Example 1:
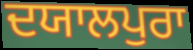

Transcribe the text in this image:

ਦਯਾਲਪੁਰਾ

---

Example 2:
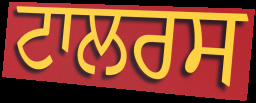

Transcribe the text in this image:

ਟਾਲਰਸ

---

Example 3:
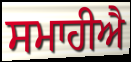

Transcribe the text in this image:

ਸਮਾਹੀਐ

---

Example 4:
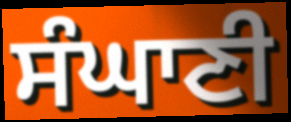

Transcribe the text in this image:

ਸੰਘਾਣੀ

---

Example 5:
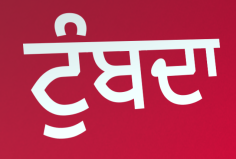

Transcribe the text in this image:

ਟੁੰਬਦਾ